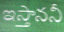
ఇస్తాననీ